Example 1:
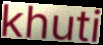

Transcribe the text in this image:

khuti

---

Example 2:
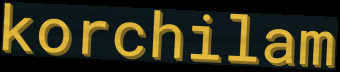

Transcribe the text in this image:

korchilam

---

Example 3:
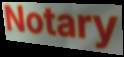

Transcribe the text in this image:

Notary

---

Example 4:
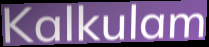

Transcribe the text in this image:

Kalkulam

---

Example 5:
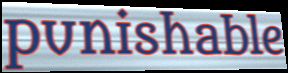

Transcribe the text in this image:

punishable